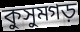
কুসুমগড়